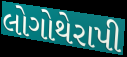
લોગોથેરાપી